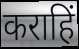
कराहिं